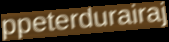
ppeterdurairaj